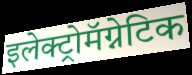
इलेक्ट्रोमॅग्नेटिक